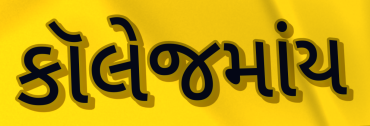
કૉલેજમાંય